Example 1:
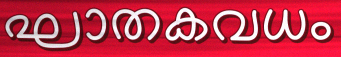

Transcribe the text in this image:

ഘാതകവധം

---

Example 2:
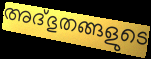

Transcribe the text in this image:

അദ്ഭുതങ്ങളുടെ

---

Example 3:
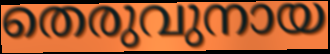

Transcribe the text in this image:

തെരുവുനായ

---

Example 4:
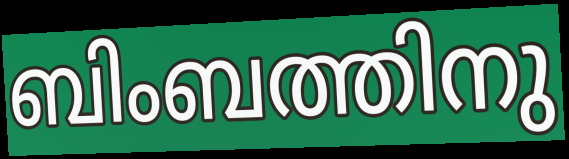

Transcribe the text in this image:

ബിംബത്തിനു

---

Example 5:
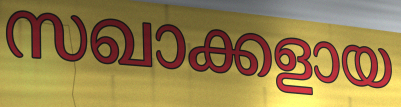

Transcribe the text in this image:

സഖാക്കളായ